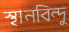
স্থানবিন্দু